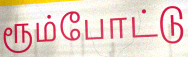
ரூம்போட்டு